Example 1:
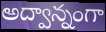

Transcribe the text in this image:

అద్వాన్నంగా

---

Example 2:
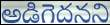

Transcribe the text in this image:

అడిగెదనని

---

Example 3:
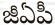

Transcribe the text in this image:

జీఏపీ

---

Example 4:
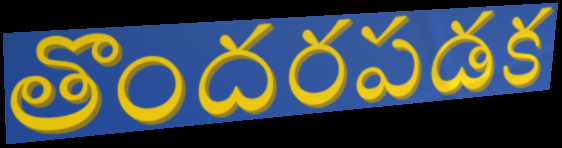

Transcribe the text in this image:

తొందరపడక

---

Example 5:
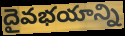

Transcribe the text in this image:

దైవభయాన్ని